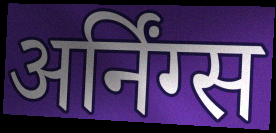
अर्निंग्स